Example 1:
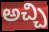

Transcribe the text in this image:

అచ్చి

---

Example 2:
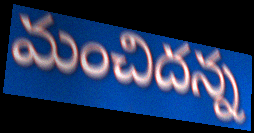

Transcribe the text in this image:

మంచిదన్న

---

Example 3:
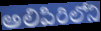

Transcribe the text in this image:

అలిపిరిలోని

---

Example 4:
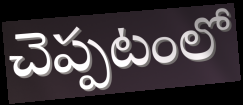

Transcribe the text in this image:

చెప్పటంలో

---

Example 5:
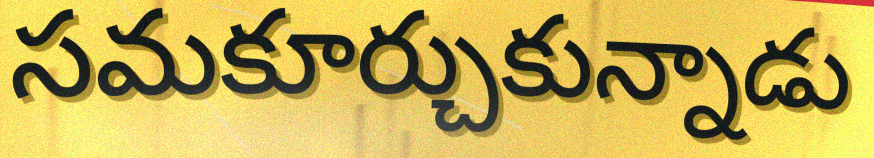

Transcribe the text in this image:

సమకూర్చుకున్నాడు